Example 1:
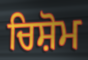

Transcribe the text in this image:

ਚਿਸ਼ੋਮ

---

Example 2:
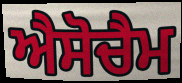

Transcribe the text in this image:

ਐਸੋਚੈਮ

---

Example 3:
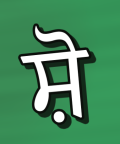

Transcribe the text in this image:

ਸ਼ੋ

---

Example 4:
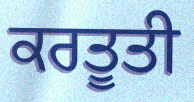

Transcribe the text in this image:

ਕਰਤੂਤੀ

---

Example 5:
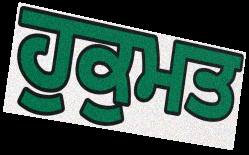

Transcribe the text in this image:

ਹੁਕੁਮਤ